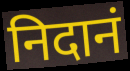
निदानं